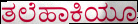
ತಲೆಹಾಕಿಯೂ